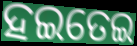
ହଇତେଇ